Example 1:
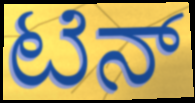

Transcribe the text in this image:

ಟೆನ್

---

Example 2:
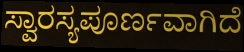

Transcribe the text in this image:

ಸ್ವಾರಸ್ಯಪೂರ್ಣವಾಗಿದೆ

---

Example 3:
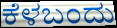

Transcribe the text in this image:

ಕೆಳಬಂದು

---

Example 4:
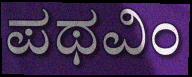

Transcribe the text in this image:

ಪಥವಿಂ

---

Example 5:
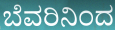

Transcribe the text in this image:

ಬೆವರಿನಿಂದ